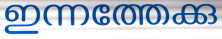
ഇന്നത്തേക്കു